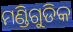
ମଣ୍ଡିଗୁଡିକ